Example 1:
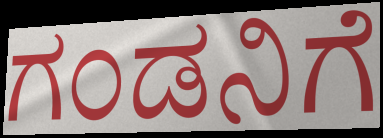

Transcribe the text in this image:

ಗಂಡನಿಗೆ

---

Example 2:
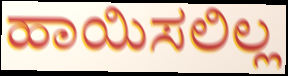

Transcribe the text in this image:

ಹಾಯಿಸಲಿಲ್ಲ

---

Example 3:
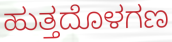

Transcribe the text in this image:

ಹುತ್ತದೊಳಗಣ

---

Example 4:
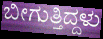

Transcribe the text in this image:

ಬೀಗುತ್ತಿದ್ದಳು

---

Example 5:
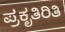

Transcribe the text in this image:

ಪ್ರಕೃತಿರಿತಿ